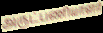
அருட்பணியாளர்